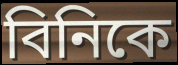
বিনিকে